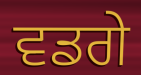
ਵਡਗੇ